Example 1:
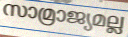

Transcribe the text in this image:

സാമ്രാജ്യമല്ല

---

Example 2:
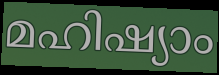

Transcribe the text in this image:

മഹിഷ്യാം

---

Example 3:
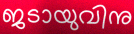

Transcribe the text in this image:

ജടായുവിനു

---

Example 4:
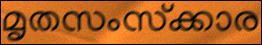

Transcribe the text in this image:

മൃതസംസ്‌ക്കാര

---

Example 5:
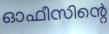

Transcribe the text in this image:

ഓഫീസിന്റെ